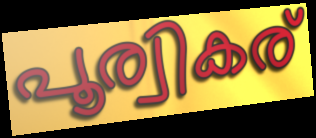
പൂര്വികര്